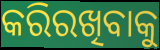
କରିରଖିବାକୁ